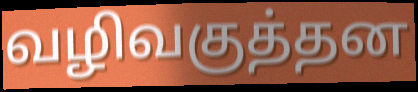
வழிவகுத்தன